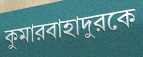
কুমারবাহাদুরকে